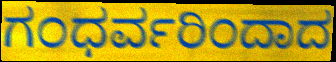
ಗಂಧರ್ವರಿಂದಾದ